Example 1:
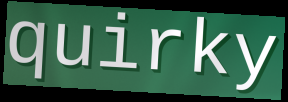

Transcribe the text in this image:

quirky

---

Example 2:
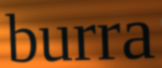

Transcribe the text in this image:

burra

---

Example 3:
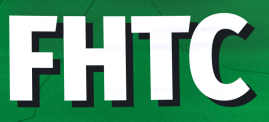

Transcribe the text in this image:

FHTC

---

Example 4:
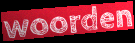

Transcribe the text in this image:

woorden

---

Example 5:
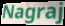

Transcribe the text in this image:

Nagraj